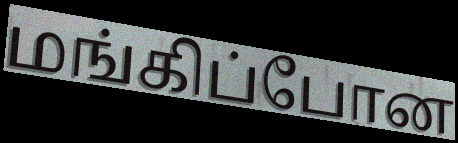
மங்கிப்போன